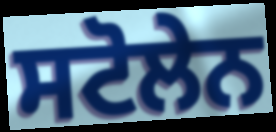
ਸਟੋਲੇਨ